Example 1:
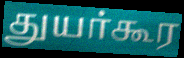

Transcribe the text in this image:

துயர்கூர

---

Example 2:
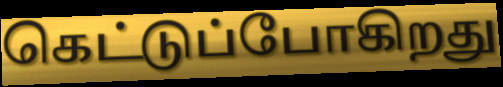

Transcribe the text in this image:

கெட்டுப்போகிறது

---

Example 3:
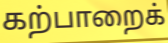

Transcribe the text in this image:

கற்பாறைக்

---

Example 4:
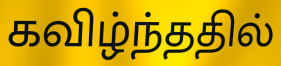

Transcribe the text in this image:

கவிழ்ந்ததில்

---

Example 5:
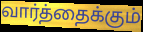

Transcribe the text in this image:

வார்த்தைக்கும்